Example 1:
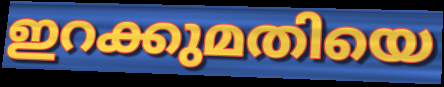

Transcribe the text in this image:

ഇറക്കുമതിയെ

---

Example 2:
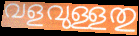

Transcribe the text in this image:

വളവുള്ളതു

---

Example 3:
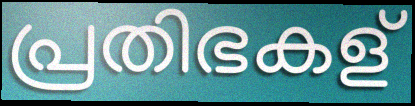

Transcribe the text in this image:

പ്രതിഭകള്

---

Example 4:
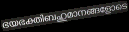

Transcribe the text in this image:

ഭയഭക്തിബഹുമാനങ്ങളോടെ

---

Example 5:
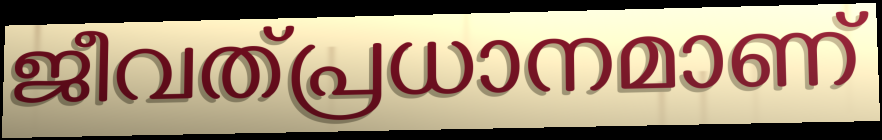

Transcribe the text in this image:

ജീവത്പ്രധാനമാണ്